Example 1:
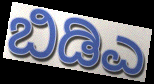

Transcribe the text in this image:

ಬಿಡಿಎ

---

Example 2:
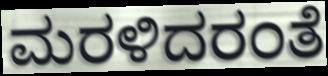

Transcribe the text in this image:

ಮರಳಿದರಂತೆ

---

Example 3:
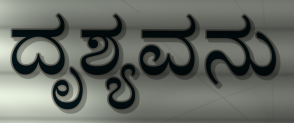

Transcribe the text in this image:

ದೃಶ್ಯವನು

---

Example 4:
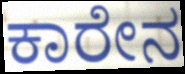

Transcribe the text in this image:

ಕಾರೇನ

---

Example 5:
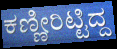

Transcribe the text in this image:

ಕಣ್ಣೀರಿಟ್ಟಿದ್ದ